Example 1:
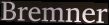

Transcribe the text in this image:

Bremner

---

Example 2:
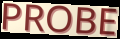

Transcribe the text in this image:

PROBE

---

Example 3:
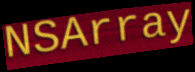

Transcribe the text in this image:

NSArray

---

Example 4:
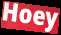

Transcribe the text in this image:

Hoey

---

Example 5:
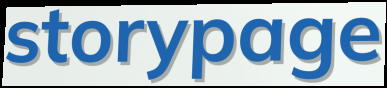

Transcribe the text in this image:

storypage